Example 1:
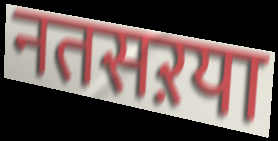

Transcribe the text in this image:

नतसऱया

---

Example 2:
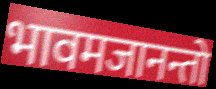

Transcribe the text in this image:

भावमजानन्तो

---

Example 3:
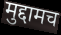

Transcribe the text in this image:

मुद्दामच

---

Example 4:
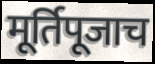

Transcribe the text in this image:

मूर्तिपूजाच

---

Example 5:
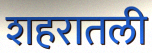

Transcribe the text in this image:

शहरातली